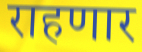
राहणार